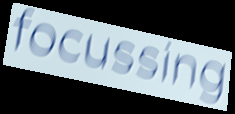
focussing